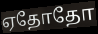
ஏதோதோ